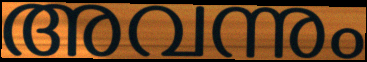
അവന്നും